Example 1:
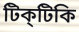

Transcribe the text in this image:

টিক্‌টিকি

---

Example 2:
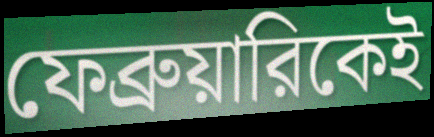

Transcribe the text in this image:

ফেব্রুয়ারিকেই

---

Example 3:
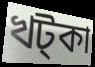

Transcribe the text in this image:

খট্‌কা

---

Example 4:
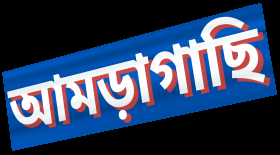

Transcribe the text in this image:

আমড়াগাছি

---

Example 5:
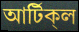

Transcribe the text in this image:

আর্টিক্‌ল